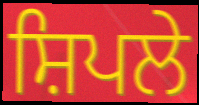
ਸ਼ਿਪਲੇ